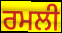
ਰਮਲੀ